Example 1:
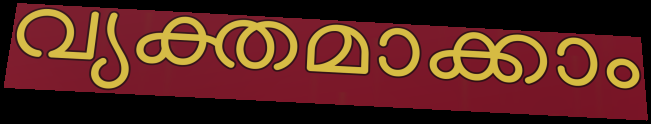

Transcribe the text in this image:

വ്യക്തമാക്കാം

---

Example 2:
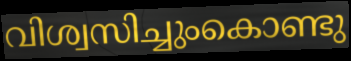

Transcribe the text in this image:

വിശ്വസിച്ചുംകൊണ്ടു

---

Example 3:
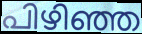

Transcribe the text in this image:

പിഴിഞ്ഞ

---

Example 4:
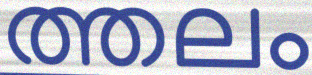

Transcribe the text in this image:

ത്തലം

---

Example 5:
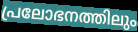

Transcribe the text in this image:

പ്രലോഭനത്തിലും